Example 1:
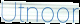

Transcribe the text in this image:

Utnoor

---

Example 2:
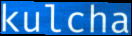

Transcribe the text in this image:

kulcha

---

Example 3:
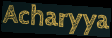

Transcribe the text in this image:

Acharyya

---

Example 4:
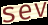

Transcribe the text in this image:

sev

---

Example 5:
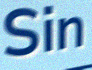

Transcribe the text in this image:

Sin